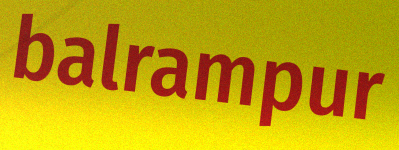
balrampur